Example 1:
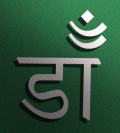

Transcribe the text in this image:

डॉँ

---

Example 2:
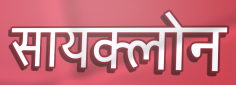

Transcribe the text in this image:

सायक्लोन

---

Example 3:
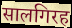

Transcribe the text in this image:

सालगिरह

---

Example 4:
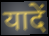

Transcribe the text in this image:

यादें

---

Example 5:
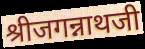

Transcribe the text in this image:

श्रीजगन्नाथजी